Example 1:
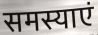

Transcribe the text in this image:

समस्याएं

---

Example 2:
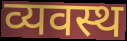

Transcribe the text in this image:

व्यवस्थ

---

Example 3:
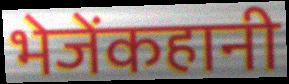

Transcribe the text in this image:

भेजेंकहानी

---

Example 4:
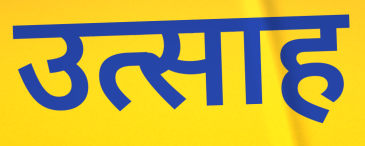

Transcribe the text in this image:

उत्साह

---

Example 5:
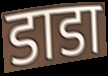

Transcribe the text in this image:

डाडा